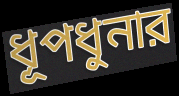
ধূপধুনার